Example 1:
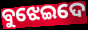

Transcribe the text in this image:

ବୁଝେଇଦେ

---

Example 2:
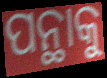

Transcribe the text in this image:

ପନ୍ଥାକୁ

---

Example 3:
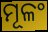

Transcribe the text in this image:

ମୂଳଂ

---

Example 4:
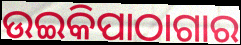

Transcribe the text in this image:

ଉଇକିପାଠାଗାର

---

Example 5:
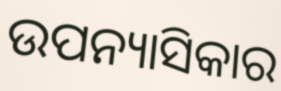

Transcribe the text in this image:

ଉପନ୍ୟାସିକାର